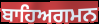
ਬਾਹਿਅਗਮਨ